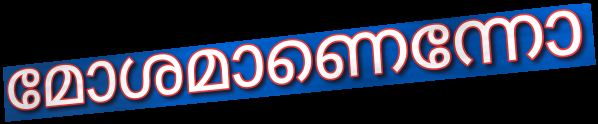
മോശമാണെന്നോ